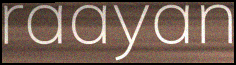
raayan